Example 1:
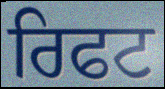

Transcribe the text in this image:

ਰਿਫਟ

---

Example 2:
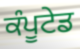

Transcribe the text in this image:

ਕੰਪੂਟੇਡ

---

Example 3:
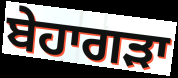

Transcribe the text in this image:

ਬੇਹਾਗੜਾ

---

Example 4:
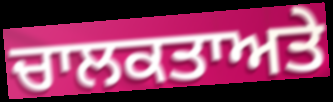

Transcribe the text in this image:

ਚਾਲਕਤਾਅਤੇ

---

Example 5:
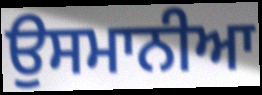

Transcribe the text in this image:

ਉਸਮਾਨੀਆ